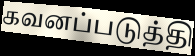
கவனப்படுத்தி